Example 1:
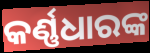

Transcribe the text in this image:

କର୍ଣ୍ଣଧାରଙ୍କ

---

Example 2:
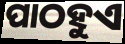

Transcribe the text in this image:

ପାଠହୁଏ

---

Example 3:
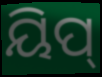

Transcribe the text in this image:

ୟିପ୍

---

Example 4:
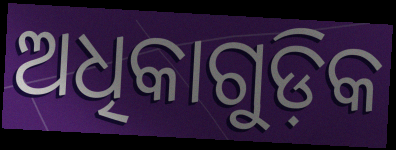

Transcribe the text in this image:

ଅଧିକାଗୁଡ଼ିକ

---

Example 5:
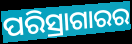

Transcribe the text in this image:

ପରିସ୍ରାଗାରର